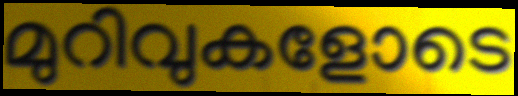
മുറിവുകളോടെ